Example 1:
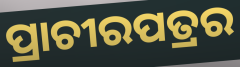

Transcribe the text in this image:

ପ୍ରାଚୀରପତ୍ରର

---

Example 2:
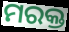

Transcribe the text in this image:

ମରକ୍ତ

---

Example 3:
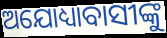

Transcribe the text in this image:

ଅଯୋଧ୍ୟାବାସୀଙ୍କୁ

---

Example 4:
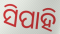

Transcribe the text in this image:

ସିପାହି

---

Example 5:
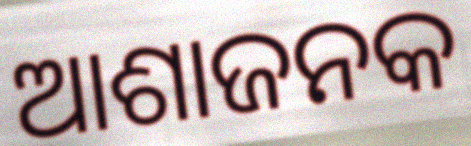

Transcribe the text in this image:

ଆଶାଜନକ